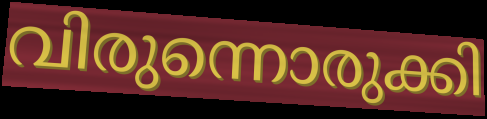
വിരുന്നൊരുക്കി